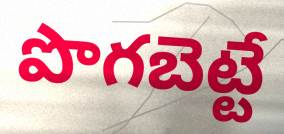
పొగబెట్టే